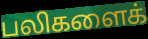
பலிகளைக்